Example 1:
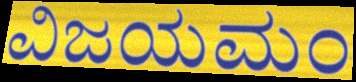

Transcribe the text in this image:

ವಿಜಯಮಂ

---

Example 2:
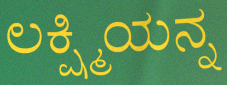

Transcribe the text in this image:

ಲಕ್ಷ್ಮಿಯನ್ನ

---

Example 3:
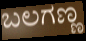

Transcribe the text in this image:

ಬಲಗಣ್ಣ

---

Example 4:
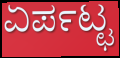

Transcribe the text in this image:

ಏರ್ಪಟ್ಟ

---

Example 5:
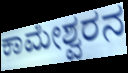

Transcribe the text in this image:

ಕಾಮೇಶ್ವರನ